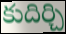
కుదిర్చి